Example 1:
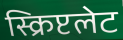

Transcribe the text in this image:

स्क्रिप्टलेट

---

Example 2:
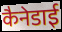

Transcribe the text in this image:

कैनेडाई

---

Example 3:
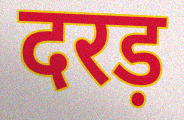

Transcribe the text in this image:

दरड़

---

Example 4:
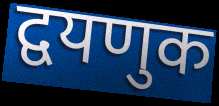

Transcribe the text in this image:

द्वयणुक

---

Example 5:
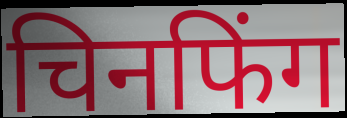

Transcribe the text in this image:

चिनफिंग